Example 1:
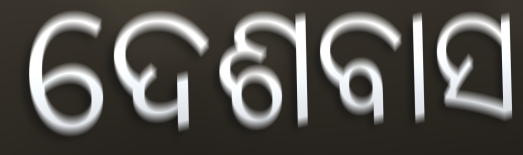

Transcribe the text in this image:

ଦେଶବାସ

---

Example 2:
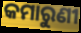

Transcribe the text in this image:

କମାରୁଣୀ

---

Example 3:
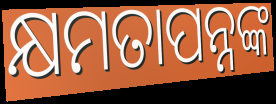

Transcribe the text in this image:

କ୍ଷମତାପନ୍ନଙ୍କ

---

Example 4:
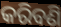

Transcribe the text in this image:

କରିବଣି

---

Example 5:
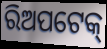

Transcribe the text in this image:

ରିଅପଟେକ୍